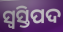
ସ୍ବସ୍ତିପଦ